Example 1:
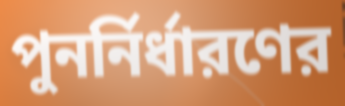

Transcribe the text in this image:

পুনর্নির্ধারণের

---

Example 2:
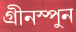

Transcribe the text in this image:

গ্রীনস্পুন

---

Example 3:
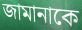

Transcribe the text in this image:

জামানাকে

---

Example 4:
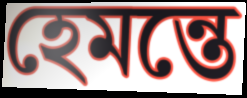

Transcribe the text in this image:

হেমন্তে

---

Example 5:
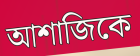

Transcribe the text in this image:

আশাজিকে